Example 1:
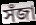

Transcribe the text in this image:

সঁজা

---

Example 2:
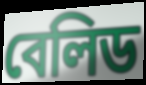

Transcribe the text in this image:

বেলিড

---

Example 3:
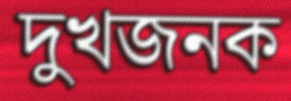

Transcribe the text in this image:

দুখজনক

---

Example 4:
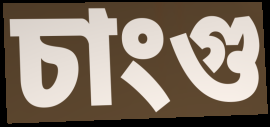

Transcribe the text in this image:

চাংগু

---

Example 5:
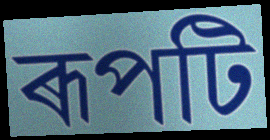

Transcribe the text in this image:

ৰূপটি